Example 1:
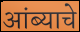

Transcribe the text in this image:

आंब्याचे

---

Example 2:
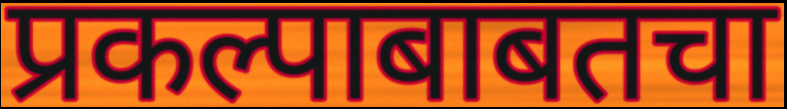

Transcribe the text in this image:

प्रकल्पाबाबतचा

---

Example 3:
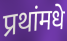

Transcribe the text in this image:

प्रथांमधे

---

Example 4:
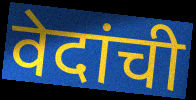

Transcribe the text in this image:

वेदांची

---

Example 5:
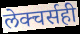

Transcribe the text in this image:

लेक्चर्सही